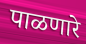
पाळणारे